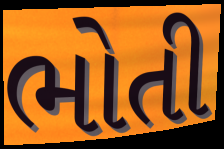
ભોતી